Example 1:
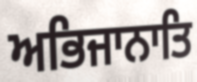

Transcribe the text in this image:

ਅਭਿਜਾਨਾਤਿ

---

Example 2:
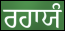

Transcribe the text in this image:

ਰਹਾਯੰ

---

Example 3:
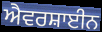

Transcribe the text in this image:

ਐਵਰਸ਼ਾਈਨ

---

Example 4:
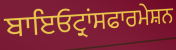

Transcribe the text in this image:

ਬਾਇਓਟ੍ਰਾਂਸਫਾਰਮੇਸ਼ਨ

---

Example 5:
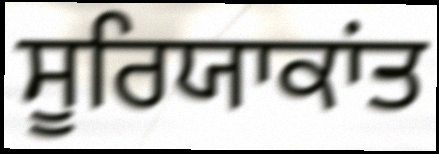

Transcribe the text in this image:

ਸੂਰਿਯਾਕਾਂਤ